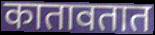
कातावतात